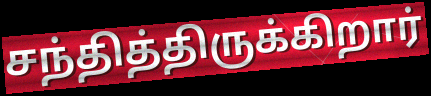
சந்தித்திருக்கிறார்